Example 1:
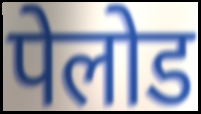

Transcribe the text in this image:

पेलोड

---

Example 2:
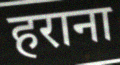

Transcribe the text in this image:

हराना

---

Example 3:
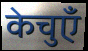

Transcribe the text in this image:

केचुएँ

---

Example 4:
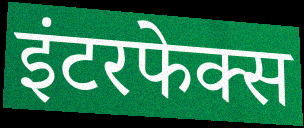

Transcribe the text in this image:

इंटरफेक्स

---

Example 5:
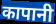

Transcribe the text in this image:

कापानी